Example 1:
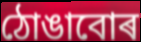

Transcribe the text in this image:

ঠোঙাবোৰ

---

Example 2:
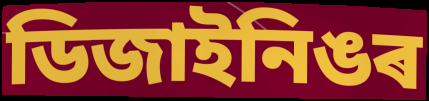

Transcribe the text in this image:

ডিজাইনিঙৰ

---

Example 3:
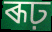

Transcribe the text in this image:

ৰূঢ়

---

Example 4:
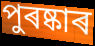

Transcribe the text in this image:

পুৰষ্কাৰ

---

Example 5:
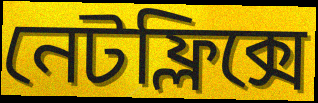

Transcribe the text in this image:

নেটফ্লিক্সে